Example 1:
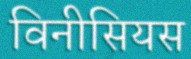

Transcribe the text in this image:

विनीसियस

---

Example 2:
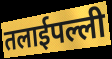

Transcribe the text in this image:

तलाईपल्ली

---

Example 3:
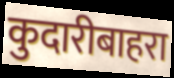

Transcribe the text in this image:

कुदारीबाहरा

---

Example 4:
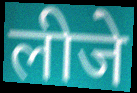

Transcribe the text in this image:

लीजे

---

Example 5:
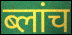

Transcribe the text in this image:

ब्लांच